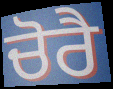
ਚੋਰੈ